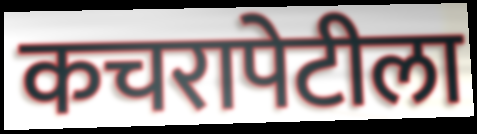
कचरापेटीला